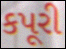
કપૂરી